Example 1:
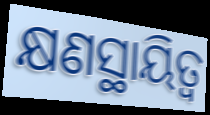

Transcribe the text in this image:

କ୍ଷଣସ୍ଥାୟିତ୍ୱ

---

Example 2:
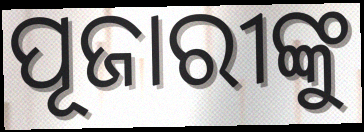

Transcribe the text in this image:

ପୂଜାରୀଙ୍କୁ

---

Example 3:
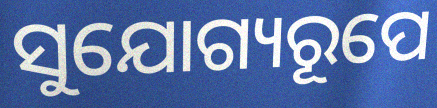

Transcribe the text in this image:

ସୁଯୋଗ୍ୟରୂପେ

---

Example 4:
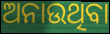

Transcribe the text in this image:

ଅନାଉଥିବା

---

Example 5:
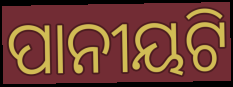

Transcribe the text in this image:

ପାନୀୟଟି